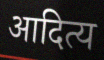
आदित्य